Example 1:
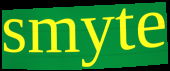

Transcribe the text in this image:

smyte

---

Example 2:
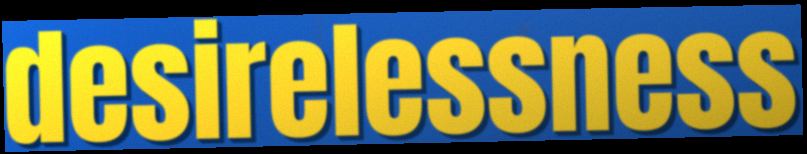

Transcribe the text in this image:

desirelessness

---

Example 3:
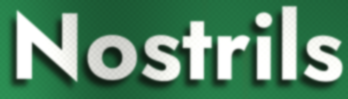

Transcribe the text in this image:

Nostrils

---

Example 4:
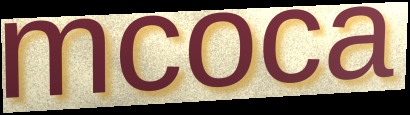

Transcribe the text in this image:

mcoca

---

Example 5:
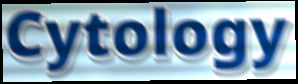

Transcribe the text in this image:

Cytology